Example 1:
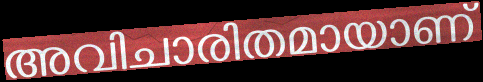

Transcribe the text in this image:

അവിചാരിതമായാണ്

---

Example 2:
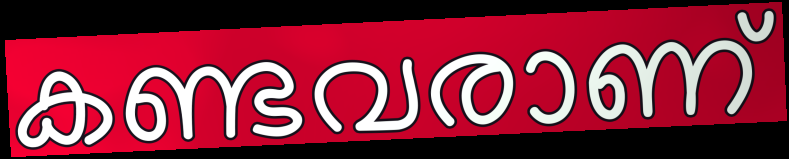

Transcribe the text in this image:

കണ്ടവരാണ്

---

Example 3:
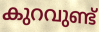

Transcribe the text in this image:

കുറവുണ്ട്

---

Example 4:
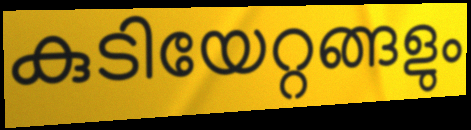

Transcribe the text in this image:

കുടിയേറ്റങ്ങളും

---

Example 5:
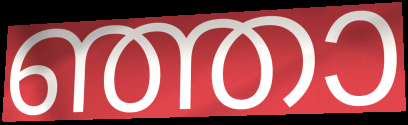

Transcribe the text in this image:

ഞ്ഞാ